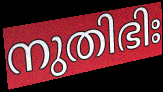
നുതിഭിഃ